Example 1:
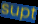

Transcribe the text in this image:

supt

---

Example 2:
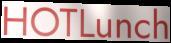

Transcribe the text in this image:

HOTLunch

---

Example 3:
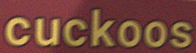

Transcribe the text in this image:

cuckoos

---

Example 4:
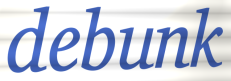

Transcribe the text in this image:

debunk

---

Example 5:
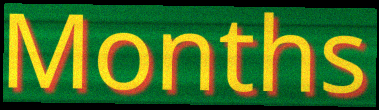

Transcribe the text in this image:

Months